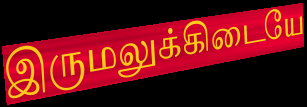
இருமலுக்கிடையே